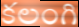
కలంగి